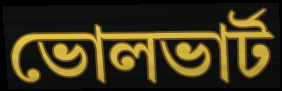
ভোলভার্ট